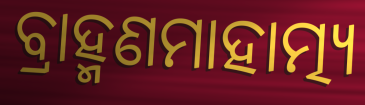
ବ୍ରାହ୍ମଣମାହାତ୍ମ୍ୟ